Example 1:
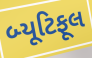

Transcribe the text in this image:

બ્યૂટિફૂલ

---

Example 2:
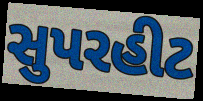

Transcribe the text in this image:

સુપરહીટ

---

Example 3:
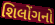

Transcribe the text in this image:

શિલોંગનો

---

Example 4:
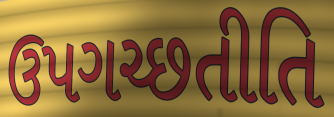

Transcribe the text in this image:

ઉપગચ્છતીતિ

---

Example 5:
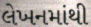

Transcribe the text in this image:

લેખનમાંથી